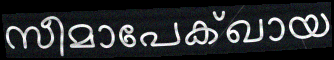
സീമാപേക്ഖായ